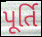
પૂર્તિ